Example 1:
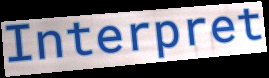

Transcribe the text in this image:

Interpret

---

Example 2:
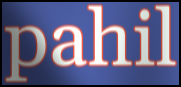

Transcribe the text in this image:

pahil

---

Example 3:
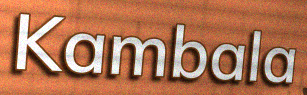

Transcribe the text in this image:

Kambala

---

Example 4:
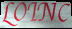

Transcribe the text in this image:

LOINC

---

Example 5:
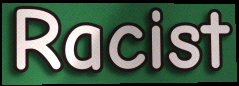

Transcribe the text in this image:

Racist